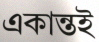
একান্তই